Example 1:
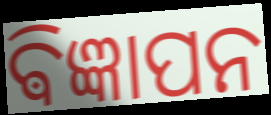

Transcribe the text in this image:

ଵିଜ୍ଞାପନ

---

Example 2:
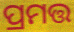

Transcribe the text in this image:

ପ୍ରମତ୍ତ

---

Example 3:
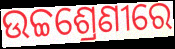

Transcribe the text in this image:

ଉଚ୍ଚଶ୍ରେଣୀରେ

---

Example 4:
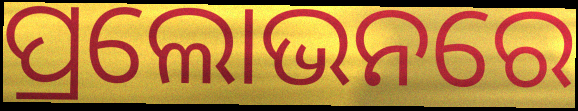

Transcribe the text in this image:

ପ୍ରଲୋଭନରେ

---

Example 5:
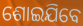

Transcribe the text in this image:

ଶୋଇଯିବେ